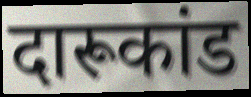
दारूकांड